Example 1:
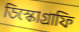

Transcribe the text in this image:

ডিস্কোগ্রাফি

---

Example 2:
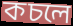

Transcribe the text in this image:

কচলে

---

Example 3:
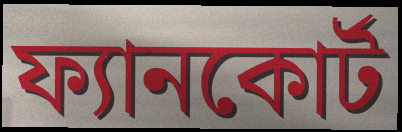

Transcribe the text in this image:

ফ্যানকোর্ট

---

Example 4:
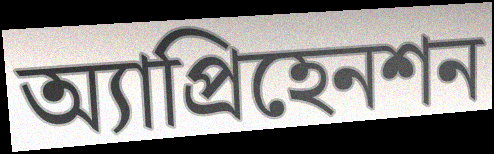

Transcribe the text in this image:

অ্যাপ্রিহেনশন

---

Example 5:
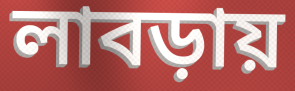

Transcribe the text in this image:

লাবড়ায়